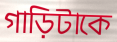
গাড়িটাকে